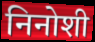
निनोशी